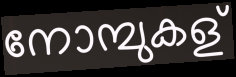
നോമ്പുകള്